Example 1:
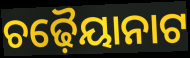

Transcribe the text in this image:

ଚଢ଼ୈୟାନାଟ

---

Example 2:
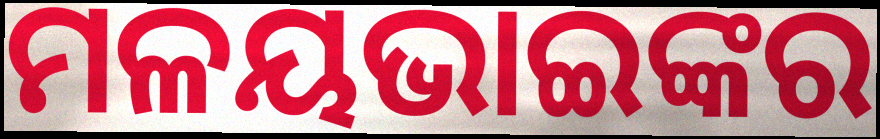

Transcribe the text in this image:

ମଳୟଭାଇଙ୍କର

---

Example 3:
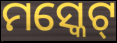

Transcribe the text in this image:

ମସ୍କେଟ୍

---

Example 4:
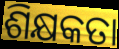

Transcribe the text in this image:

ଶିକ୍ଷକତା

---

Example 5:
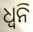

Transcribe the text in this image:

ଧ୍ୱନି